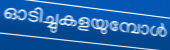
ഓടിച്ചുകളയുമ്പോൾ